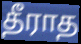
தீராத